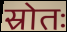
स्रोतः